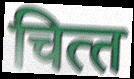
चित्‍त